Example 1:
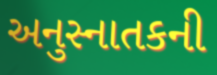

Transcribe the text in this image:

અનુસ્નાતકની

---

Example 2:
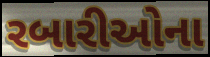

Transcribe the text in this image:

રબારીઓના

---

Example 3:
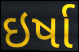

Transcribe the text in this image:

ઇર્ષા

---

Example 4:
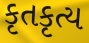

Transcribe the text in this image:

કૃતકૃત્ય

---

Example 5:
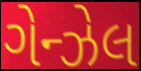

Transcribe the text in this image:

ગેન્ઝેલ